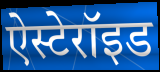
ऐस्टेरॉइड